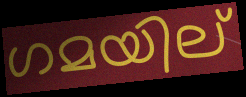
ഗമയില്